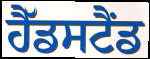
ਹੈੱਡਸਟੈਂਡ